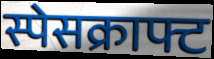
स्‍पेसक्राफ्ट